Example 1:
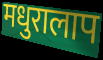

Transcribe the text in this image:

मधुरालाप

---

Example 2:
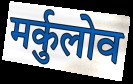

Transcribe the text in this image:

मर्कुलोव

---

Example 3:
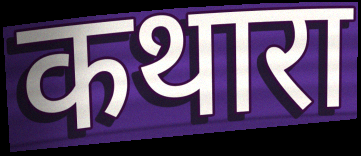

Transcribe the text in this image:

कथारा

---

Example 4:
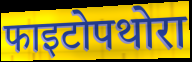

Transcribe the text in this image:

फाइटोपथोरा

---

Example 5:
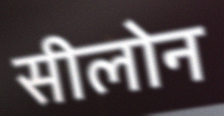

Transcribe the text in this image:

सीलोन